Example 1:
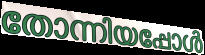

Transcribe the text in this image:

തോന്നിയപ്പോൾ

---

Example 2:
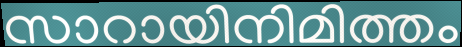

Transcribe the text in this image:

സാറായിനിമിത്തം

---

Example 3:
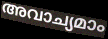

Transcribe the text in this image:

അവാച്യമാം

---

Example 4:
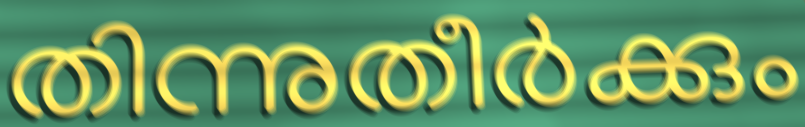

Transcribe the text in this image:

തിന്നുതീർക്കും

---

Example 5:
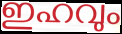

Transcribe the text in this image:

ഇഹവും